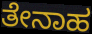
ತೇನಾಹ